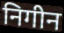
निगीन